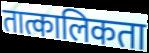
तात्कालिकता